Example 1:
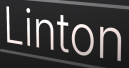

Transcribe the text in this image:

Linton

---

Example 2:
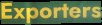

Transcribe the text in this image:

Exporters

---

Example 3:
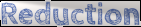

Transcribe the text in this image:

Reduction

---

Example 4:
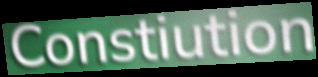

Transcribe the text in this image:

Constiution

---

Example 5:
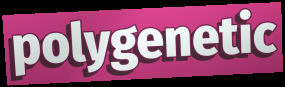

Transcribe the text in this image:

polygenetic